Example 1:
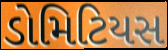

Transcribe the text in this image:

ડોમિટિયસ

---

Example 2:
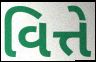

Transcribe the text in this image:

વિત્તે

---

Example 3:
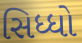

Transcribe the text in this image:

સિધ્ધો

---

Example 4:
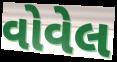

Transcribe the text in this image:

વોવેલ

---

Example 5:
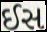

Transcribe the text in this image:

ઈસ